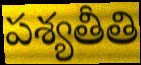
పశ్యతీతి